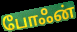
போஃன்